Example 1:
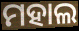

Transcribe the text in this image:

ମହାଲ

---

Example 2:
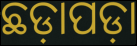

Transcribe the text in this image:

ଛଡ଼ାପଡ଼ା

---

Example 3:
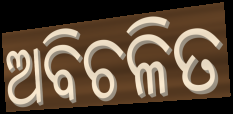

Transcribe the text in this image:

ଅବିଚଳିତ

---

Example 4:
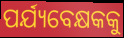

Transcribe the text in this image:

ପର୍ଯ୍ୟବେକ୍ଷକକୁ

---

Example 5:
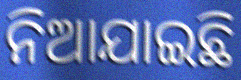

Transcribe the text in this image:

ନିଆଯାଇଛି